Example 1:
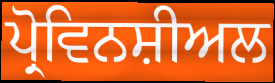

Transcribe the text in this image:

ਪ੍ਰੋਵਿਨਸ਼ੀਅਲ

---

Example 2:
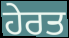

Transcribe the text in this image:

ਹੇਰਤ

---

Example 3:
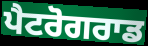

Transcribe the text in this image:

ਪੈਟਰੋਗਰਾਡ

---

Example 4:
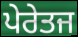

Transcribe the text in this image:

ਪੇਰੇਤਜ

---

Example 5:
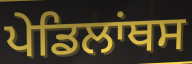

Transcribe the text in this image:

ਪੇਡਿਲਾਂਥਸ